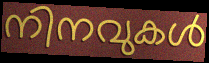
നിനവുകൾ